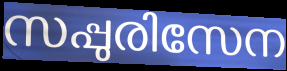
സപ്പുരിസേന